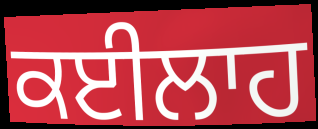
ਕਈਲਾਹ